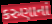
કરુણાનાં